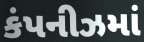
કંપનીઝમાં